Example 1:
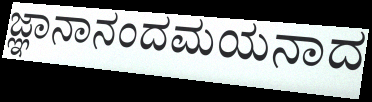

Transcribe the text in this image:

ಜ್ಞಾನಾನಂದಮಯನಾದ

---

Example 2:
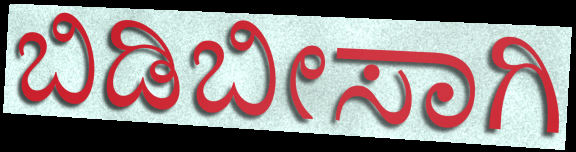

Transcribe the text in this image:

ಬಿಡಿಬೀಸಾಗಿ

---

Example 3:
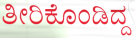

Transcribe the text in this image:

ತೀರಿಕೊಂಡಿದ್ದ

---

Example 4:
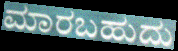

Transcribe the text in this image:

ಮಾರಬಹುದು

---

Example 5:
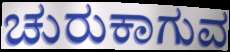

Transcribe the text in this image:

ಚುರುಕಾಗುವ